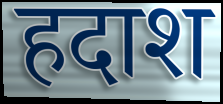
हदाश